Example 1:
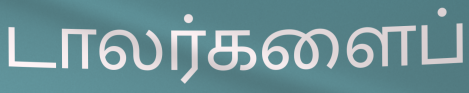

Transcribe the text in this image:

டாலர்களைப்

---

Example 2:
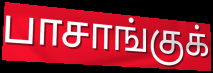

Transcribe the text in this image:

பாசாங்குக்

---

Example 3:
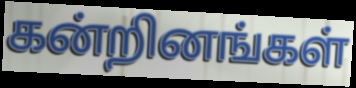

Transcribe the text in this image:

கன்றினங்கள்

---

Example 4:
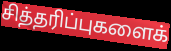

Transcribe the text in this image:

சித்தரிப்புகளைக்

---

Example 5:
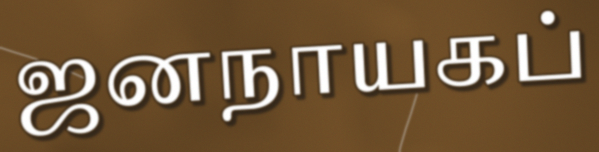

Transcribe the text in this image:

ஜனநாயகப்